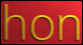
hon